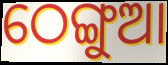
ଠେଙ୍ଗୁଆ